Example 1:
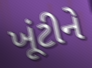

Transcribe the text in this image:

ખૂંટીને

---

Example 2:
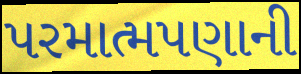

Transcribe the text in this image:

પરમાત્મપણાની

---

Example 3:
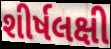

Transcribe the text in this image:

શીર્ષલક્ષી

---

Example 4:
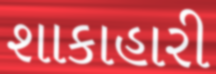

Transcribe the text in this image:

શાકાહારી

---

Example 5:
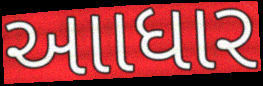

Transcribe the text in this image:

આાધાર